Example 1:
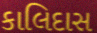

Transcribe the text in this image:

કાલિદાસ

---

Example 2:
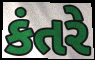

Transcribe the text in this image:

કંતરે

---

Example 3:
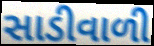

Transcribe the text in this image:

સાડીવાળી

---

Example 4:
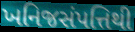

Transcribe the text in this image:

ખનિજસંપત્તિથી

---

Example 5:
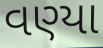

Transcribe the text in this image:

વણ્યા